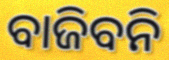
ବାଜିବନି